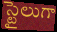
స్టైలుగా